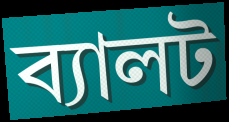
ব্যালট